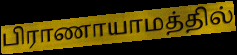
பிராணாயாமத்தில்